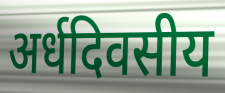
अर्धदिवसीय